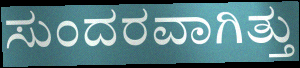
ಸುಂದರವಾಗಿತ್ತು